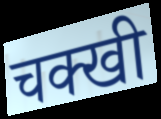
चक्खी